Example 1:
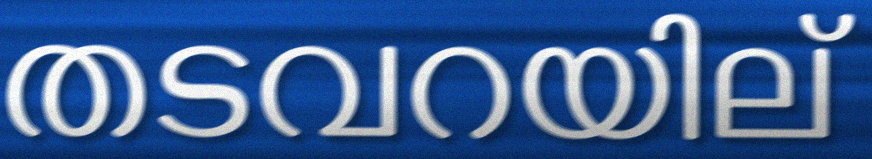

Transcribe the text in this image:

തടവറയില്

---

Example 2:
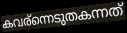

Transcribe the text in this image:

കവര്ന്നെടുതകന്നത്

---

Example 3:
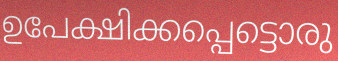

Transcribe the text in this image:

ഉപേക്ഷിക്കപ്പെട്ടൊരു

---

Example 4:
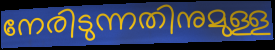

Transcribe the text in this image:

നേരിടുന്നതിനുമുള്ള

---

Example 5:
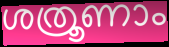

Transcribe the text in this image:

ശത്രൂണാം